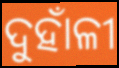
ଦୁହାଁଳୀ